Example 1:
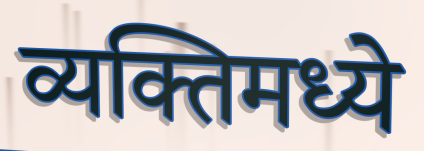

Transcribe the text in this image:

व्यक्तिमध्ये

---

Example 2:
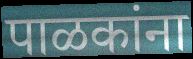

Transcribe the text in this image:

पाळकांना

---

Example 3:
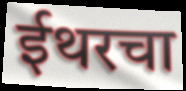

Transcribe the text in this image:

ईथरचा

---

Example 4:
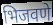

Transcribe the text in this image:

भिजवणे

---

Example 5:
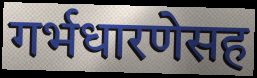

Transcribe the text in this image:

गर्भधारणेसह